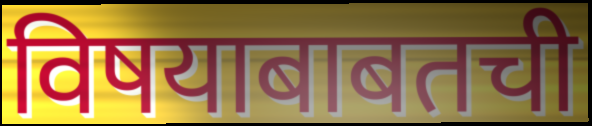
विषयाबाबतची